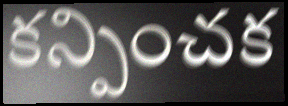
కన్పించక